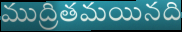
ముద్రితమయినది